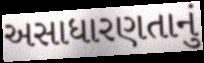
અસાધારણતાનું